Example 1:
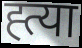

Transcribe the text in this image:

ह्त्या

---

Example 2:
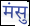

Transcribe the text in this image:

मंसु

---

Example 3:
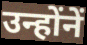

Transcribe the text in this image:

उन्होंनें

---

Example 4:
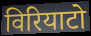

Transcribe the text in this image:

विरियाटो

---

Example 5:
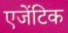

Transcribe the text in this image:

एजेंटिक